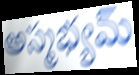
అస్మభ్యమ్